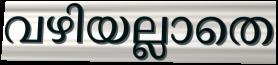
വഴിയല്ലാതെ